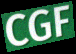
CGF